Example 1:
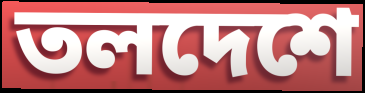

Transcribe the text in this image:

তলদেশে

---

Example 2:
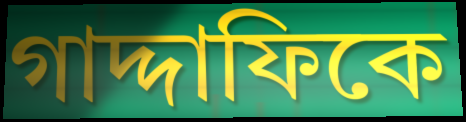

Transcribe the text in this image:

গাদ্দাফিকে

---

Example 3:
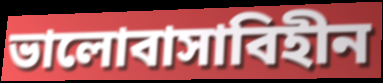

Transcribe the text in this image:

ভালোবাসাবিহীন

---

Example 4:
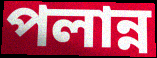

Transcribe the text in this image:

পলান্ন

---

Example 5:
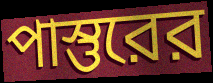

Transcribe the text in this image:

পাস্তুরের